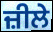
ਜ਼ੀਲੇ